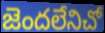
జెందలేనిచో